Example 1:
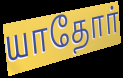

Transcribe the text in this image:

யாதோர்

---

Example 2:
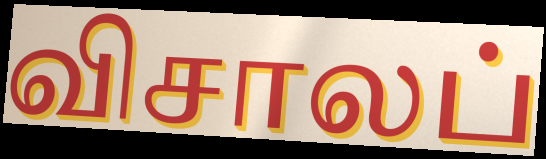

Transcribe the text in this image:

விசாலப்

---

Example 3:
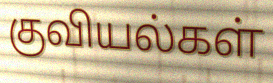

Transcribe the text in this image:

குவியல்கள்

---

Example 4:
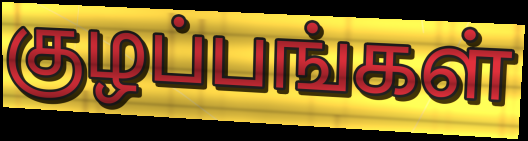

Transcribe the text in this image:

குழப்பங்கள்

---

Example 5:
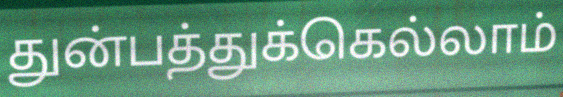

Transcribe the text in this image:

துன்பத்துக்கெல்லாம்